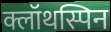
क्लॉथस्पिन